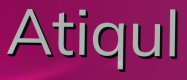
Atiqul